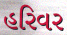
હરિવર